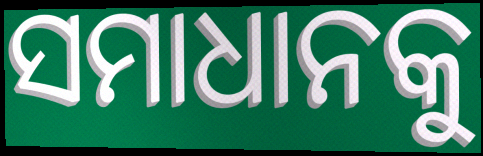
ସମାଧାନକୁ